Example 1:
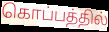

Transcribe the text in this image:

கொப்பத்தில்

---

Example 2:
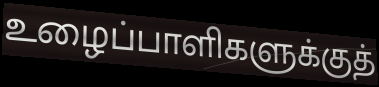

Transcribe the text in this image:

உழைப்பாளிகளுக்குத்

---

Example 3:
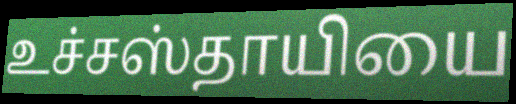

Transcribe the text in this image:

உச்சஸ்தாயியை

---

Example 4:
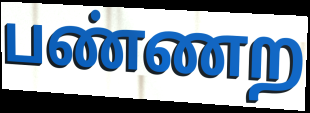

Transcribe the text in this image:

பண்ணற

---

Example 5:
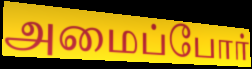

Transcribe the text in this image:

அமைப்போர்